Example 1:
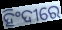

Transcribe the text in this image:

ହିଂଦୀରେ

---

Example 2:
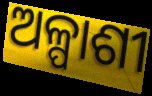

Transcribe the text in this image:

ଅଳ୍ପାଶୀ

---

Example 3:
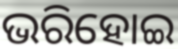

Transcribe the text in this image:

ଭରିହୋଇ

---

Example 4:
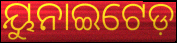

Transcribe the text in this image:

ୟୁନାଇଟେଡ଼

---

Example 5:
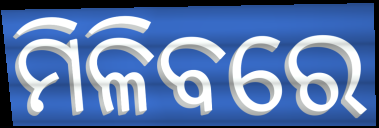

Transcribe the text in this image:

ମିଳିବରେ